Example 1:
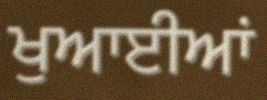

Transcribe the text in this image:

ਖੁਆਈਆਂ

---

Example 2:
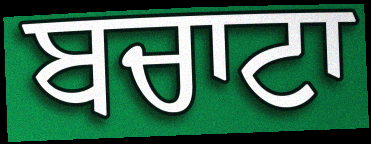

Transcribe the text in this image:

ਬਚਾਟਾ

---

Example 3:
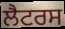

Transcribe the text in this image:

ਲੈਟਰਸ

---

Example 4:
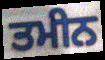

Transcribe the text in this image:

ਤਮੀਨ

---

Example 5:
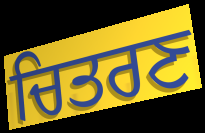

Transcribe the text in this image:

ਚਿਤਰਣ